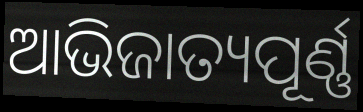
ଆଭିଜାତ୍ୟପୂର୍ଣ୍ଣ